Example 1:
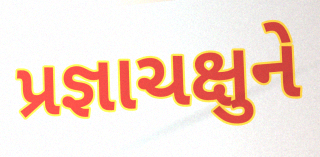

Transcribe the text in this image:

પ્રજ્ઞાચક્ષુને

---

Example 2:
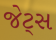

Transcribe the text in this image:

જેટ્સ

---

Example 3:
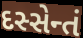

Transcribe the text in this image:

દસ્સેન્તં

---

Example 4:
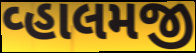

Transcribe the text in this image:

વ્હાલમજી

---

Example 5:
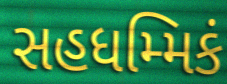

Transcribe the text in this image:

સહધમ્મિકં